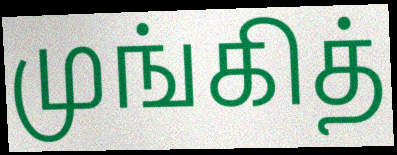
முங்கித்